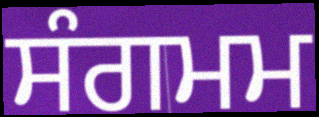
ਸੰਗਮਮ